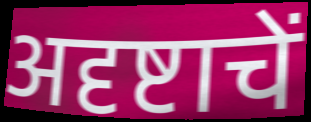
अदृष्टाचें